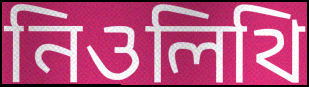
নিওলিথি